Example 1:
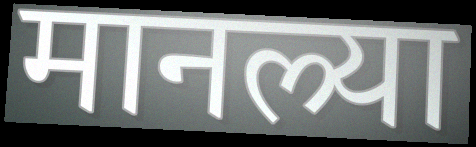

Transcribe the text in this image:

मानल्या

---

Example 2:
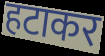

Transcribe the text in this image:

हटाकर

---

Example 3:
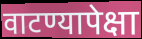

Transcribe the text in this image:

वाटण्यापेक्षा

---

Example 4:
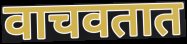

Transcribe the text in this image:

वाचवतात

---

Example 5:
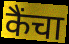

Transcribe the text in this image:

कैंचा